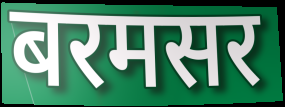
बरमसर